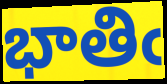
భాతిఁ